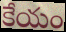
కేయం